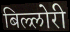
बिल्लोरी